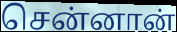
சென்னான்